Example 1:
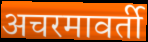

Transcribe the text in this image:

अचरमावर्ती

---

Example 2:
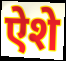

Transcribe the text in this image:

ऐशे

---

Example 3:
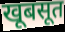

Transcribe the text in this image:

खूबसूत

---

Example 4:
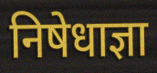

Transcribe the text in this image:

निषेधाज्ञा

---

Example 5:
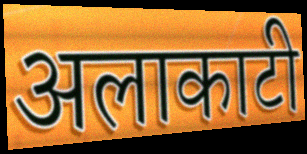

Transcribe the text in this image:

अलाकाटी